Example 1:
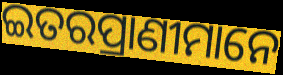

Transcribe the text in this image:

ଇତରପ୍ରାଣୀମାନେ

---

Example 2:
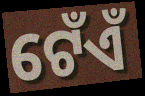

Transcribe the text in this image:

ଟେଁଏଁ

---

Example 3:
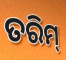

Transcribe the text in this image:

ତରିମ୍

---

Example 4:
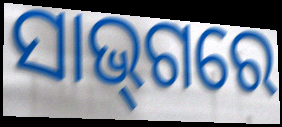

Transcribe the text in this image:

ସାଭ୍‌ଗରେ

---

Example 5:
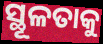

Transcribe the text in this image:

ସ୍ଥୂଳତାକୁ